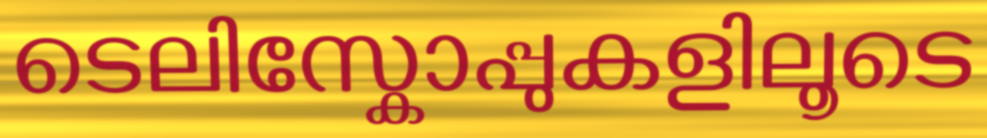
ടെലിസ്കോപ്പുകളിലൂടെ